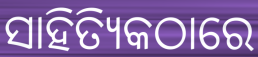
ସାହିତ୍ୟିକଠାରେ